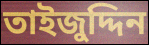
তাইজুদ্দিন